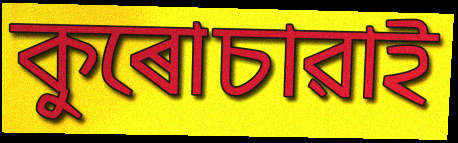
কুৰোচাৱাই